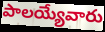
పాలయ్యేవారు